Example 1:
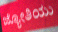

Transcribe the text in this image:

ಜ್ಯೋತಿಯು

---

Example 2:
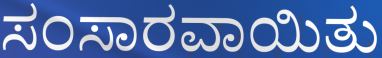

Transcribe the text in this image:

ಸಂಸಾರವಾಯಿತು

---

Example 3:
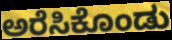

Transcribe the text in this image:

ಅರೆಸಿಕೊಂಡು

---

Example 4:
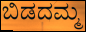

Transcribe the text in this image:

ಬಿಡದಮ್ಮ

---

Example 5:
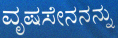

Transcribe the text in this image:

ವೃಷಸೇನನನ್ನು